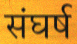
संघर्ष